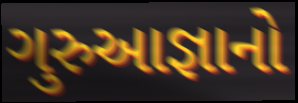
ગુરુઆજ્ઞાનો